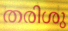
തരിശു